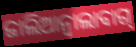
ଜାଲିଆନ୍ଵାଲାବାଗ୍